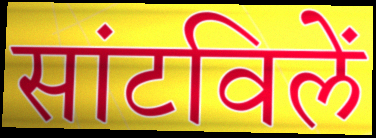
सांटविलें